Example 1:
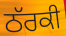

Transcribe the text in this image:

ਠੱਰਕੀ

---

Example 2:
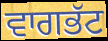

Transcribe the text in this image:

ਵਾਗਭੱਟ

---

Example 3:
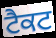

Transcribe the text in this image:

ਟੈਕਟ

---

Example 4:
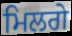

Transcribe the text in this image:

ਮਿਲਗੇ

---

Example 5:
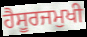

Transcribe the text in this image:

ਹੈਸੂਰਜਮੁਖੀ